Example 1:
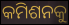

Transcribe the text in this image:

କମିଶନକୁ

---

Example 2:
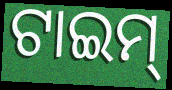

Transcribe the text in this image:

ଟାଇମ୍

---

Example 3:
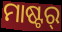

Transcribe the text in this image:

ମାଷ୍ଟର୍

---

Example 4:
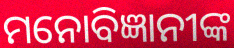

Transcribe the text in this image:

ମନୋବିଜ୍ଞାନୀଙ୍କ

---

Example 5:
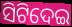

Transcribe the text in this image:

ସିଟିଦେଇ